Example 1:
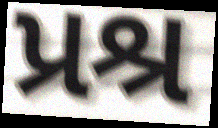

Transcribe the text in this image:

પ્રશ્ર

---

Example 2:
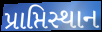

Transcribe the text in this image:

પ્રાપ્તિસ્થાન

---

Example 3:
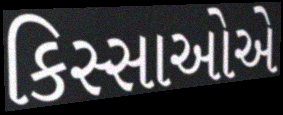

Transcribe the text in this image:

કિસ્સાઓએ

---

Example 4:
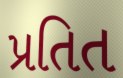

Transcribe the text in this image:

પ્રતિત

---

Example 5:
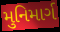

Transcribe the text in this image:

મુનિમાર્ગ